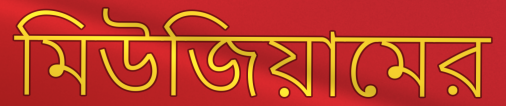
মিউজিয়ামের